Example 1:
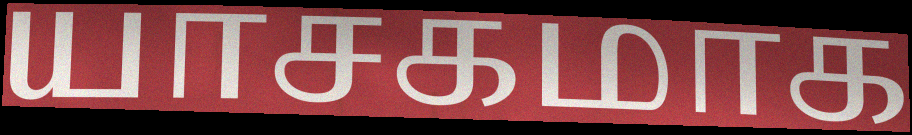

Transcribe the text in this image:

யாசகமாக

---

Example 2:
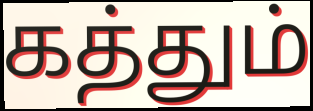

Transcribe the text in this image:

கத்தும்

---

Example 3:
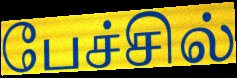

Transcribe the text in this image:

பேச்சில்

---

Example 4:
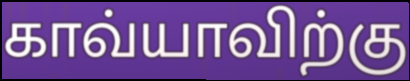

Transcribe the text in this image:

காவ்யாவிற்கு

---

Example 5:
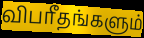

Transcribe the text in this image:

விபரீதங்களும்